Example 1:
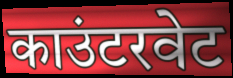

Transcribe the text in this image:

काउंटरवेट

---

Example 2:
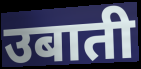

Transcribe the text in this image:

उबाती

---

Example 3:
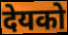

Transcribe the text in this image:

देयको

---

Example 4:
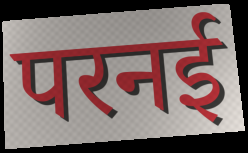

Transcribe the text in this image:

परनई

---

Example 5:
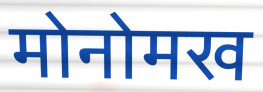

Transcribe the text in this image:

मोनोमख